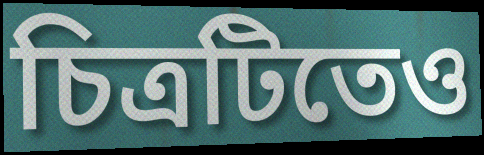
চিত্রটিতেও